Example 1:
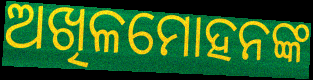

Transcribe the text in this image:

ଅଖିଳମୋହନଙ୍କ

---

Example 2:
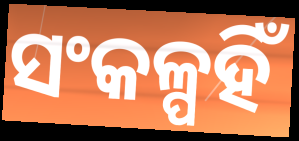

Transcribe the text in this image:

ସଂକଳ୍ପହିଁ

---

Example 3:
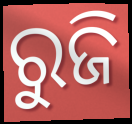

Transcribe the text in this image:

ରୁଜି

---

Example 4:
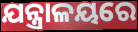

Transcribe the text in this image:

ଯନ୍ତ୍ରାଳୟରେ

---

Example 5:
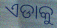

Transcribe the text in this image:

ଏଡାକୁ